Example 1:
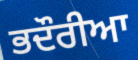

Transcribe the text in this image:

ਭਦੌਰੀਆ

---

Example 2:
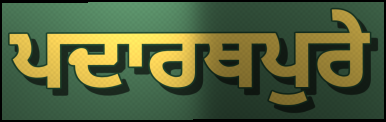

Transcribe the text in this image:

ਪਦਾਰਥਪੁਰੇ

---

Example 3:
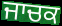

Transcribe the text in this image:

ਜਾਚਕ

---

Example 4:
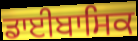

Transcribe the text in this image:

ਡਾਈਬਾਸਿਕ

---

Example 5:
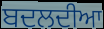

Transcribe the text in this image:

ਬਦਲਦੀਆ